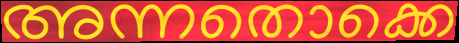
അന്നതൊക്കെ